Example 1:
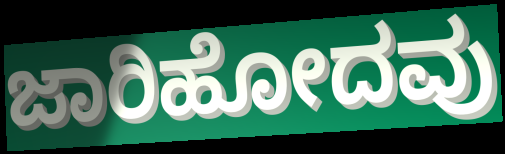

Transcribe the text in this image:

ಜಾರಿಹೋದವು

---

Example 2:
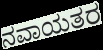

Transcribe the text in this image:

ನವಾಯತರ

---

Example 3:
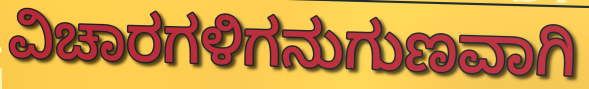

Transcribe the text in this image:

ವಿಚಾರಗಳಿಗನುಗುಣವಾಗಿ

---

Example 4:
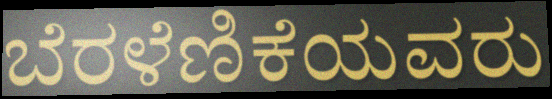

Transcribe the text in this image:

ಬೆರಳೆಣಿಕೆಯವರು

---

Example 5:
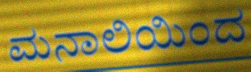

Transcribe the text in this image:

ಮನಾಲಿಯಿಂದ